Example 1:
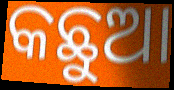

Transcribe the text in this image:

କଛୁଆ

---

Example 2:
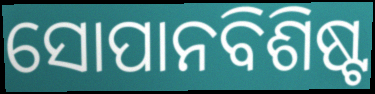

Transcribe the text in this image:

ସୋପାନବିଶିଷ୍ଟ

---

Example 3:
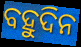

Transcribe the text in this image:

ବହୁଦିନ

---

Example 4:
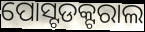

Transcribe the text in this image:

ପୋସ୍ଟଡକ୍ଟରାଲ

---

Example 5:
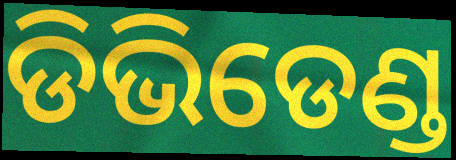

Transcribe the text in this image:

ଡିଭିଡେଣ୍ଡ